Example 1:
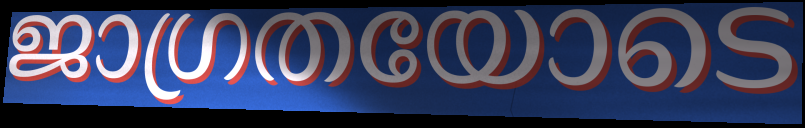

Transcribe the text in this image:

ജാഗ്രതയോടെ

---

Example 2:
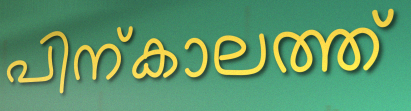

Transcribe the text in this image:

പിന്കാലത്ത്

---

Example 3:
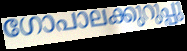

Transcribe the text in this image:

ഗോപാലക്കുറുപ്പു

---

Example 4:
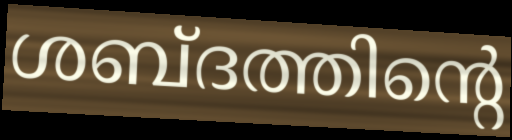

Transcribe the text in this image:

ശബ്ദത്തിന്റെ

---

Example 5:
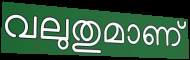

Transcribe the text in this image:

വലുതുമാണ്